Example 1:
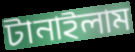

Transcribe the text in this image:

টানাইলাম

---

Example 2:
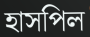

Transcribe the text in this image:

হাসপিল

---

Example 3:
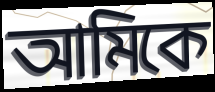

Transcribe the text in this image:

আমিকে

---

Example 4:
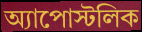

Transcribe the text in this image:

অ্যাপোস্টলিক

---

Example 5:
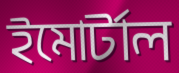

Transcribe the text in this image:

ইমোর্টাল